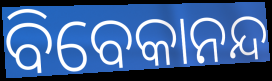
ବିବେକାନନ୍ଦ